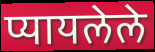
प्यायलेले